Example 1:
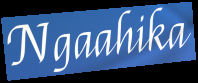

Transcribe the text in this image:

Ngaahika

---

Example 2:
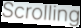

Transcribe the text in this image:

Scrolling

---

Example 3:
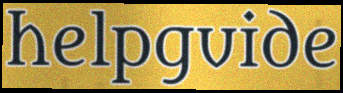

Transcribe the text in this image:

helpguide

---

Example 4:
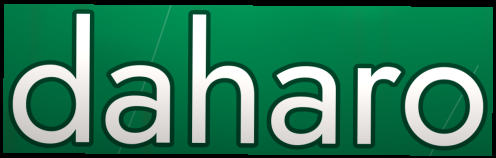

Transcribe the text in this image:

daharo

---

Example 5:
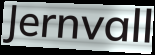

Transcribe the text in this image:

Jernvall